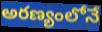
అరణ్యంలోనే